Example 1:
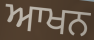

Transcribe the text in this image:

ਆਖਨ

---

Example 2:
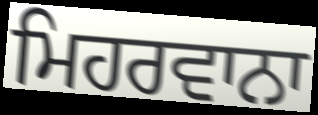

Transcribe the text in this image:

ਮਿਹਰਵਾਨਾ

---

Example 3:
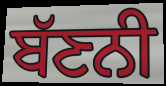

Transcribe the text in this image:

ਬੱਣਨੀ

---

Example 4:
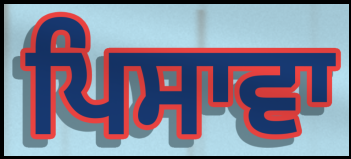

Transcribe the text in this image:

ਪਿਸਾਵਾ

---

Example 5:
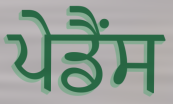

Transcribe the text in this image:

ਪੇਡੈਂਸ